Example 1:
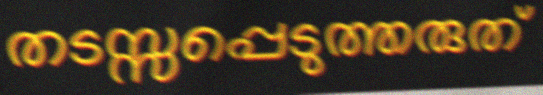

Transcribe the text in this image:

തടസ്സപ്പെടുത്തരുത്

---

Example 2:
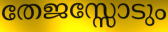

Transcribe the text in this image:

തേജസ്സോടും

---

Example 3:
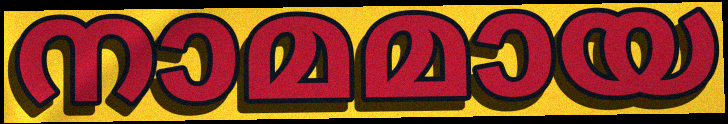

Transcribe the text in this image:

നാമമായ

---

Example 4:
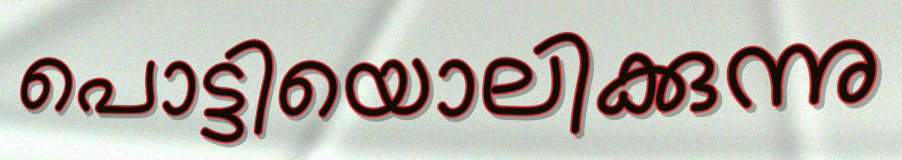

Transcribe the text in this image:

പൊട്ടിയൊലിക്കുന്നു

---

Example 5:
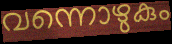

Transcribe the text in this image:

വന്നൊഴുകും